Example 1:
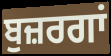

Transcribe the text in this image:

ਬੁਜ਼ਰਗਾਂ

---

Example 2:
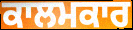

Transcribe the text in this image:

ਕਾਲਮਕਾਰ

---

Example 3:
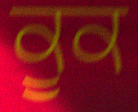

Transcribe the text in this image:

ਕੂਕ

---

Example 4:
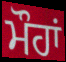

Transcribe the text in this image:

ਮੌਹਾਂ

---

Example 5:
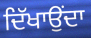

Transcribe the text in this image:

ਦਿੱਖਾਉਂਦਾ